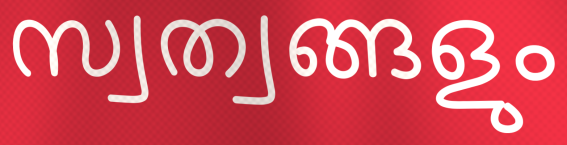
സ്വത്വങ്ങളും